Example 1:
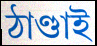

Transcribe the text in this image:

ঠাণ্ডাই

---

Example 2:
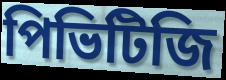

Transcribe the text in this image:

পিভিটিজি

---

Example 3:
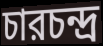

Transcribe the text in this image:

চারচন্দ্র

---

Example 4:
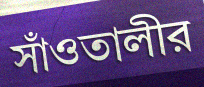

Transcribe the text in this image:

সাঁওতালীর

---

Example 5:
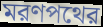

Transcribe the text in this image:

মরণপথের